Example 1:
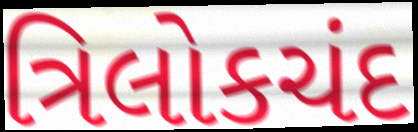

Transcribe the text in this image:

ત્રિલોકચંદ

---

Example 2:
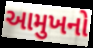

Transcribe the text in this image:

આમુખનો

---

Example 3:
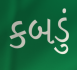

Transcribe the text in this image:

કબડું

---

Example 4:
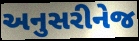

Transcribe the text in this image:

અનુસરીનેજ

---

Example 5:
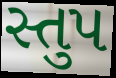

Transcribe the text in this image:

સ્તુપ